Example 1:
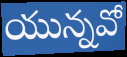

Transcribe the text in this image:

యున్నవో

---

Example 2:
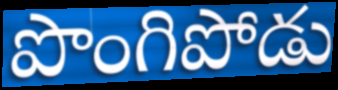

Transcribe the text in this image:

పొంగిపోడు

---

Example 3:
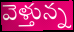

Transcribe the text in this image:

వెళ్తున్న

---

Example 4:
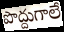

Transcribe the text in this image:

పొద్దుగాలే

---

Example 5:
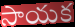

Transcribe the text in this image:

సాయక